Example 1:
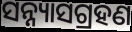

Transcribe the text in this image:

ସନ୍ନ୍ୟାସଗ୍ରହଣ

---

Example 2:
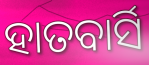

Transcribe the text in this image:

ହାତବାର୍ସି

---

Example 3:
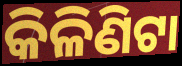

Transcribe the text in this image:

କିଳିଣିଟା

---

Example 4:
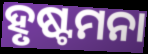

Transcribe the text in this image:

ହୃଷ୍ଟମନା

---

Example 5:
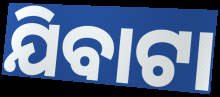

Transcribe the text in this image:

ଯିବାଟା